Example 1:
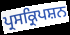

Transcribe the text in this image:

ਪ੍ਰਸਕ੍ਰਿਪਸ਼ਨ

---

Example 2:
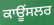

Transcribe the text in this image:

ਕਾਊਂਸਲਰ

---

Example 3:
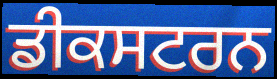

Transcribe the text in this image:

ਡੀਕਸਟਰਨ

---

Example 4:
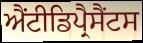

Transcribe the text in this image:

ਐਂਟੀਡਿਪ੍ਰੈਸੈਂਟਸ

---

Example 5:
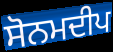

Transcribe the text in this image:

ਸੋਨਮਦੀਪ